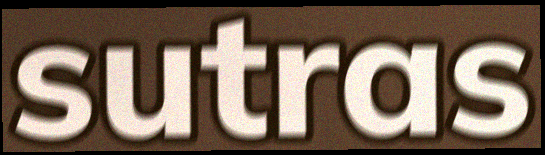
sutras